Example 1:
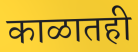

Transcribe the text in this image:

काळातही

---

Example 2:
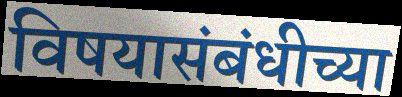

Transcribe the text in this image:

विषयासंबंधीच्या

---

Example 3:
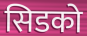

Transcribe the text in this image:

सिडको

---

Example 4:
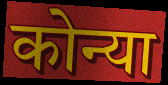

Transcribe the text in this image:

कोन्या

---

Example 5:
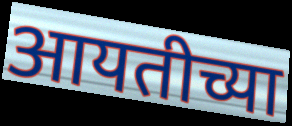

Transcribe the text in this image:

आयतीच्या